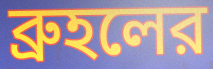
ব্রুহলের